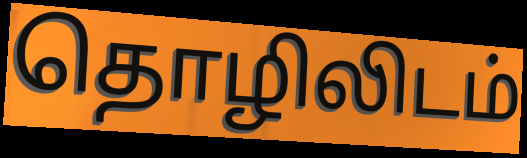
தொழிலிடம்